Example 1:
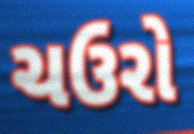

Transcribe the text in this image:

ચઉરો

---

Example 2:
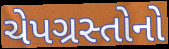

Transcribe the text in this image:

ચેપગ્રસ્તોનો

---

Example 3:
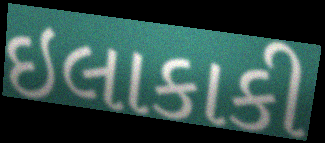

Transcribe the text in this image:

ઇલાકાકી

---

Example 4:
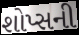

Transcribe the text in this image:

શોપ્સની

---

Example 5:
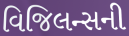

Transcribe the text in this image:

વિજિલન્સની